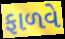
ફાળવે